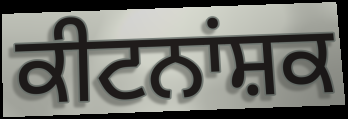
ਕੀਟਨਾਂਸ਼ਕ